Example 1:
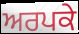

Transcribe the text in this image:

ਅਰਪਕੇ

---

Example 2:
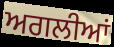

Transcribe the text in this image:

ਅਗਲੀਆਂ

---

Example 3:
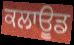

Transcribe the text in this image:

ਕਲਾਊਡ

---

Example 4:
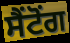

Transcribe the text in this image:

ਸੈਂਟੋਂਗ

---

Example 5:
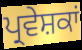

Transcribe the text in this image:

ਪ੍ਰਵੇਸ਼ਕਾਂ